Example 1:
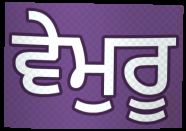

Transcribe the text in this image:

ਵੇਮੁਰੂ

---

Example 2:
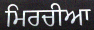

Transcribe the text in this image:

ਮਿਰਚੀਆ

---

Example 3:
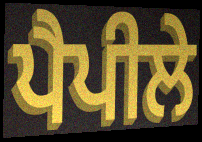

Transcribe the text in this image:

ਪੈਪੀਲੇ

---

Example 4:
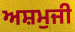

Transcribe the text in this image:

ਅਸ਼ਮੁਜੀ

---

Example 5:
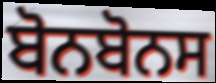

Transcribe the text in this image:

ਬੋਨਬੋਨਸ